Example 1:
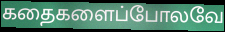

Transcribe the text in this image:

கதைகளைப்போலவே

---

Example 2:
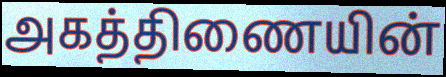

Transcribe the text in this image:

அகத்திணையின்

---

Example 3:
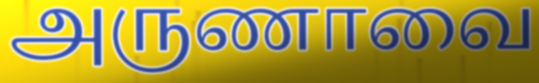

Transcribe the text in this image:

அருணாவை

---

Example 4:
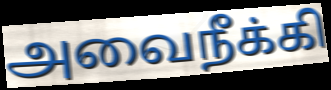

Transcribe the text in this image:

அவைநீக்கி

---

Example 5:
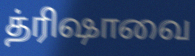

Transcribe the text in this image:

த்ரிஷாவை